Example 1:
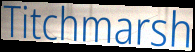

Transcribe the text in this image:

Titchmarsh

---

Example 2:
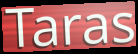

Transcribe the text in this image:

Taras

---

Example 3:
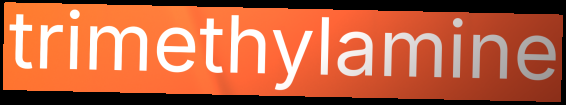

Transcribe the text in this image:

trimethylamine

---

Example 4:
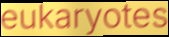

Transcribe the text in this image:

eukaryotes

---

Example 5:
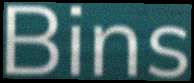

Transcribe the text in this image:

Bins